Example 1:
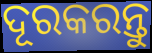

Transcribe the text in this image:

ଦୂରକରନ୍ତୁ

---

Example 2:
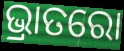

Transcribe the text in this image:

ଭ୍ରାତରୋ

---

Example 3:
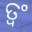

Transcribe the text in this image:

ତ୍ୱଂ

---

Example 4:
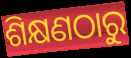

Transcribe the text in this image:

ଶିକ୍ଷଣଠାରୁ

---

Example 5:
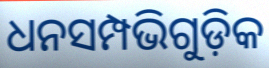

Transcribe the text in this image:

ଧନସମ୍ପଭିଗୁଡ଼ିକ